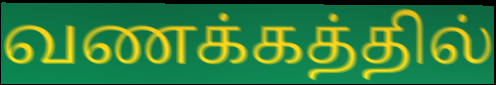
வணக்கத்தில்